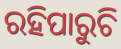
ରହିପାରୁଚି